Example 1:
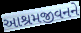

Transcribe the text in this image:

આશ્રમજીવનને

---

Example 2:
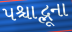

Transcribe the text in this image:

પશ્ચાદ્ભૂના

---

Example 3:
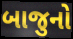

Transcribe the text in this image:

બાજુનો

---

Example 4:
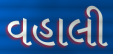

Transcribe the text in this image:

વહાલી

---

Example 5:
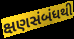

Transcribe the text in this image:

ક્ષણસંબંધથી